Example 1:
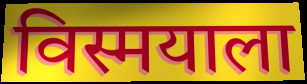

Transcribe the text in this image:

विस्मयाला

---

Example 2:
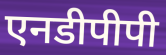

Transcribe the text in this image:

एनडीपीपी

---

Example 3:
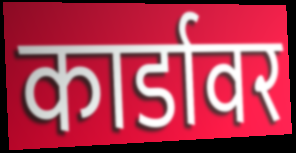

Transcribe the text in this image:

कार्डावर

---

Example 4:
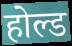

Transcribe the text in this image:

होल्ड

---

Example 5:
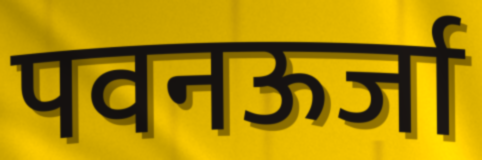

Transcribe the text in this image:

पवनऊर्जा